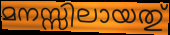
മനസ്സിലായതു്